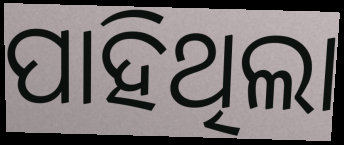
ପାହିଥିଲା